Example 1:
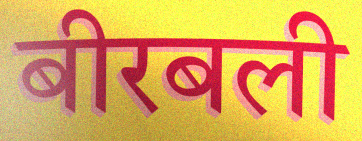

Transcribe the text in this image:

बीरबली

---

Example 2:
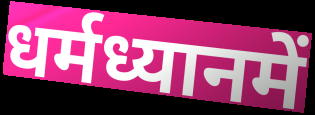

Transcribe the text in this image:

धर्मध्यानमें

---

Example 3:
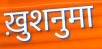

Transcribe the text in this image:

ख़ुशनुमा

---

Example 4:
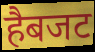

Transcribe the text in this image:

हैबजट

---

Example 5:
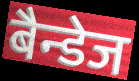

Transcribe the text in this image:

बैन्डेज